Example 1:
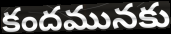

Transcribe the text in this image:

కందమునకు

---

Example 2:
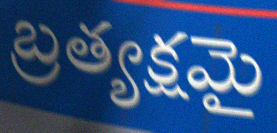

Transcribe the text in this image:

బ్రత్యక్షమై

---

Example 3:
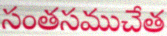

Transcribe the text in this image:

సంతసముచేత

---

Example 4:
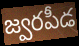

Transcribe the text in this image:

జ్వరపీడ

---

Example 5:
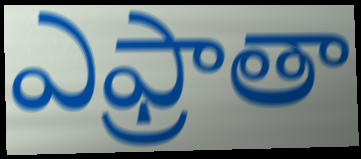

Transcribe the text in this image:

ఎఫ్రాతా